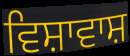
ਵਿਸ਼ਾਵਾਸ਼